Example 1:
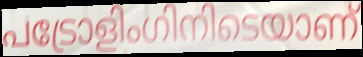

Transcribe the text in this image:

പട്രോളിംഗിനിടെയാണ്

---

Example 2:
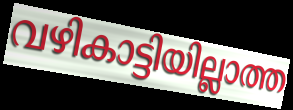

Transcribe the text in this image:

വഴികാട്ടിയില്ലാത്ത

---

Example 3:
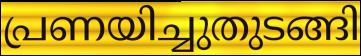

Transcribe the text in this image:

പ്രണയിച്ചുതുടങ്ങി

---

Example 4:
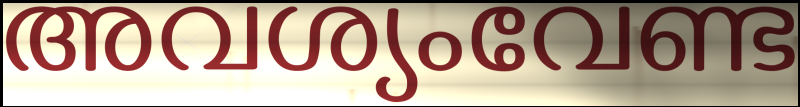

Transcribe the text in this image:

അവശ്യംവേണ്ട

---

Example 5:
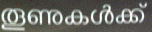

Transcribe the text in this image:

തൂണുകൾക്ക്